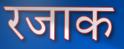
रजाक